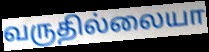
வருதில்லையா